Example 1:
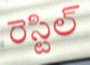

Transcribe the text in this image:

రెస్టిల్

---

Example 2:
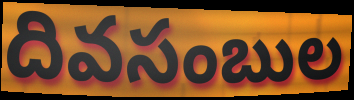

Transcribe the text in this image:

దివసంబుల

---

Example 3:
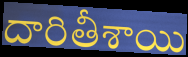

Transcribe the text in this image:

దారితీశాయి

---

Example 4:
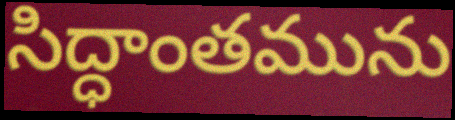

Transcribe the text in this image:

సిద్ధాంతమును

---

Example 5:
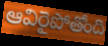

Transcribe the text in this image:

ఆవిరైపోతోంది